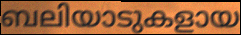
ബലിയാടുകളായ